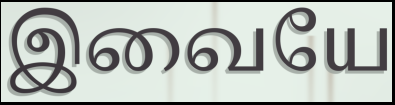
இவையே